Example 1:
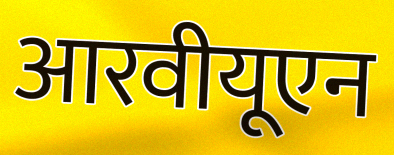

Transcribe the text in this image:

आरवीयूएन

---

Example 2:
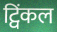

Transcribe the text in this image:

ट्विंकल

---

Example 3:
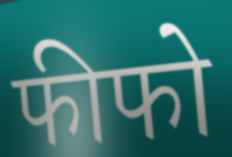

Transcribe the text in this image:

फीफो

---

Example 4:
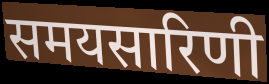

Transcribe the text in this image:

समयसारिणी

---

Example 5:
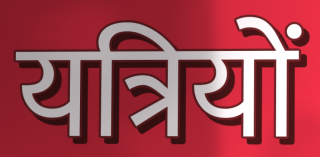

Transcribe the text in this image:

यत्रियों